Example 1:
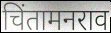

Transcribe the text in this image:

चिंतामनराव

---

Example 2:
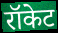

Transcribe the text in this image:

रॉकेट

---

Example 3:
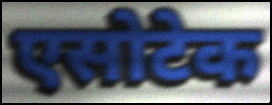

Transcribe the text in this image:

एसोटेक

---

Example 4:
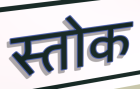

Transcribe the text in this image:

स्तोक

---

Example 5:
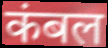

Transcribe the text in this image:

कंबल